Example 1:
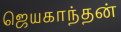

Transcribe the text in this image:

ஜெயகாந்தன்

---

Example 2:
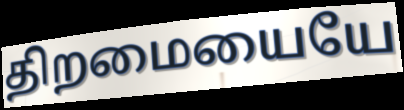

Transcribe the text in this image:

திறமையையே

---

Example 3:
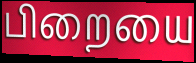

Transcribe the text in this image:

பிறையை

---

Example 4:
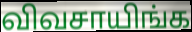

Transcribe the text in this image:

விவசாயிங்க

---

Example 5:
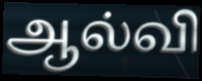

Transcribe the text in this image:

ஆல்வி